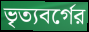
ভৃত্যবর্গের